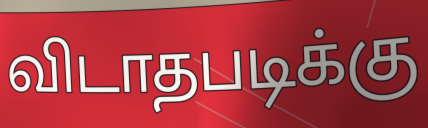
விடாதபடிக்கு